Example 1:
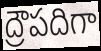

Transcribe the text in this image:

ద్రౌపదిగా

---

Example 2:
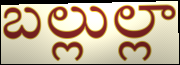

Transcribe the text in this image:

బల్లుల్లా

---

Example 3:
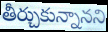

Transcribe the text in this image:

తీర్చుకున్నానని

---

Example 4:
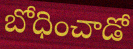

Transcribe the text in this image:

బోధించాడో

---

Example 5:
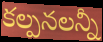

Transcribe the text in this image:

కల్పనలన్నీ